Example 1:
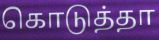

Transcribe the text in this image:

கொடுத்தா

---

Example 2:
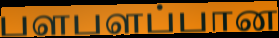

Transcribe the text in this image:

பளபளப்பான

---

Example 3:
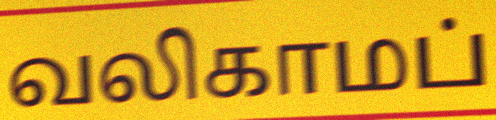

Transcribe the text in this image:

வலிகாமப்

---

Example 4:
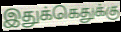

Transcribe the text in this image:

இதுக்கெதுக்கு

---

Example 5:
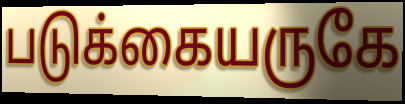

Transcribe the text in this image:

படுக்கையருகே